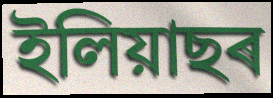
ইলিয়াছৰ